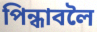
পিন্ধাবলৈ